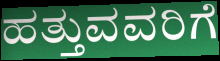
ಹತ್ತುವವರಿಗೆ